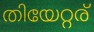
തിയേറ്റര്